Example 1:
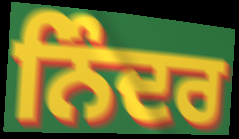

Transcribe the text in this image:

ਨਿੰਦਰ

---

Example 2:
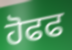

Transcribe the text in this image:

ਹੋਫਫ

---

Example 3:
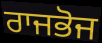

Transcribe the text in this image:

ਰਾਜਭੋਜ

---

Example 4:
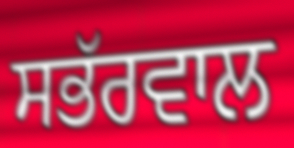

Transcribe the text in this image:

ਸਭੱਰਵਾਲ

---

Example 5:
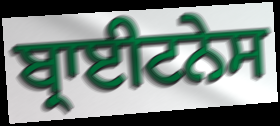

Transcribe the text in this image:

ਬ੍ਰਾਈਟਨੇਸ